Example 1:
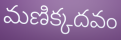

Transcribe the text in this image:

మణిక్కదవం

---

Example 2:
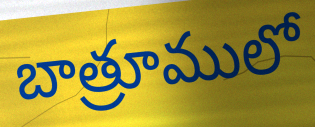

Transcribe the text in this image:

బాత్రూములో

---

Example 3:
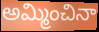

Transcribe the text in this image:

అమ్మించినా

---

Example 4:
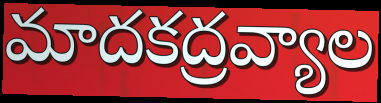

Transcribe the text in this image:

మాదకద్రవ్యాల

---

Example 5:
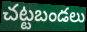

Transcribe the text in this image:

చట్టబండలు